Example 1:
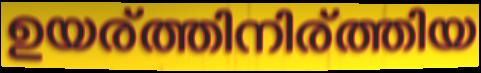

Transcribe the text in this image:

ഉയര്ത്തിനിര്ത്തിയ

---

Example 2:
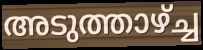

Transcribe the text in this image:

അടുത്താഴ്ച്ച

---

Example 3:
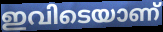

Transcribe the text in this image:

ഇവിടെയാണ്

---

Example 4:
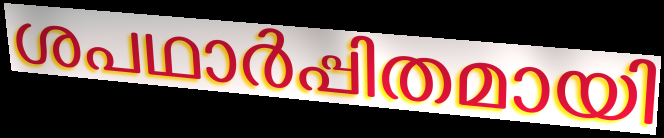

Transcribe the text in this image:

ശപഥാർപ്പിതമായി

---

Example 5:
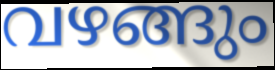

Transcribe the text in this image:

വഴങ്ങും